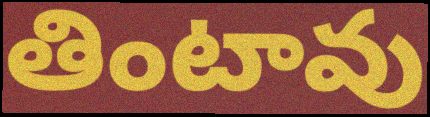
తింటావు